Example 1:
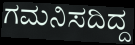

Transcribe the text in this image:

ಗಮನಿಸದಿದ್ದ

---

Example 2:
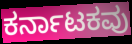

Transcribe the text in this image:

ಕರ್ನಾಟಕವು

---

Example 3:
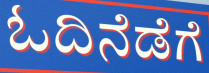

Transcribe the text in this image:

ಓದಿನೆಡೆಗೆ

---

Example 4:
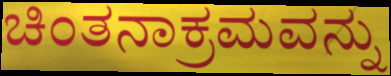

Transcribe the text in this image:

ಚಿಂತನಾಕ್ರಮವನ್ನು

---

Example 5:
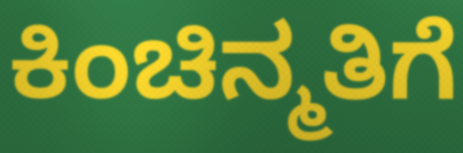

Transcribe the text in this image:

ಕಿಂಚಿನ್ಮತಿಗೆ